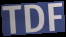
TDF